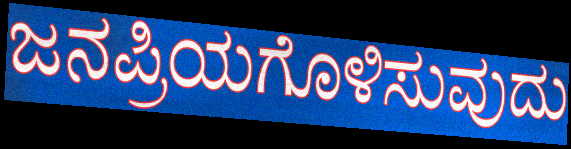
ಜನಪ್ರಿಯಗೊಳಿಸುವುದು